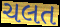
ચલત